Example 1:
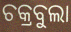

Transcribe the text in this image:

ଚକ୍ରବୁଲା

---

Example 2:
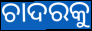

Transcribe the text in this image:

ଚାଦରକୁ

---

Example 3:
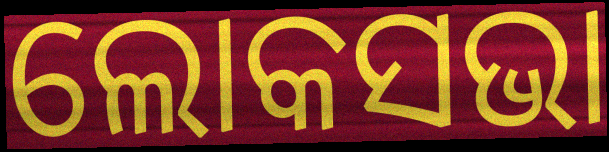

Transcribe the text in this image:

ଲୋକସଭା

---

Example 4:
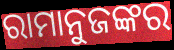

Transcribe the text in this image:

ରାମାନୁଜଙ୍କର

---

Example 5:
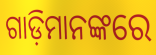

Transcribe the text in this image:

ଗାଡ଼ିମାନଙ୍କରେ